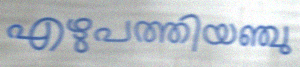
എഴുപത്തിയഞ്ചു